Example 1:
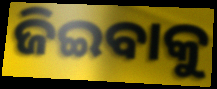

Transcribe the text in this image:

ଜିଇବାକୁ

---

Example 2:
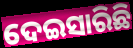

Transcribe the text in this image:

ଦେଇସାରିଛି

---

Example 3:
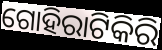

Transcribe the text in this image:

ଗୋହିରାଟିକିରି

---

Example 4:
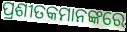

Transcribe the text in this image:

ପ୍ରଶୀତକମାନଙ୍କରେ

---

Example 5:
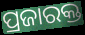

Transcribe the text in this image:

ପ୍ରଜାରକ୍ତ